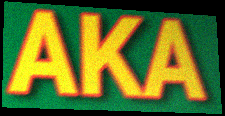
AKA